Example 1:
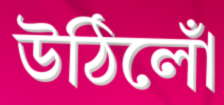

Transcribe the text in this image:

উঠিলোঁ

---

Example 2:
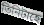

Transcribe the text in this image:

তিনিটাহে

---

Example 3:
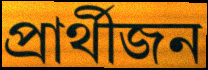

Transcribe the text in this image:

প্ৰাৰ্থীজন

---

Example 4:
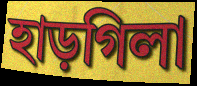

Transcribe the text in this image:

হাড়গিলা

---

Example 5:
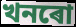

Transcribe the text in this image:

খনৰো